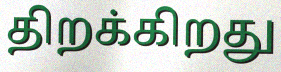
திறக்கிறது